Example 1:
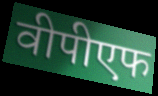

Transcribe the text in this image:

वीपीएफ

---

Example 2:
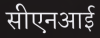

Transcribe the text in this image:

सीएनआई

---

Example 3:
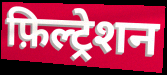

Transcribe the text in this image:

फ़िल्ट्रेशन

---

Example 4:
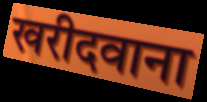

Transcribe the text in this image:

खरीदवाना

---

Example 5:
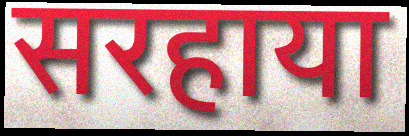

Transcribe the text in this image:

सरहाया